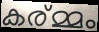
കര്മ്മം